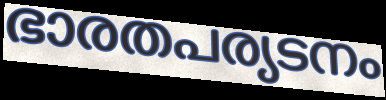
ഭാരതപര്യടനം